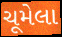
ચૂમેલા